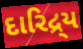
દારિદ્ર્ય